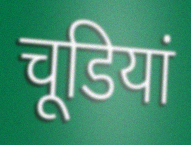
चूडियां